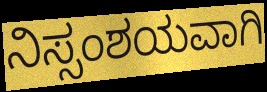
ನಿಸ್ಸಂಶಯವಾಗಿ